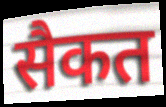
सैकत